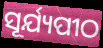
ସୂର୍ଯ୍ୟପୀଠ